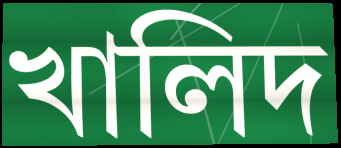
খালিদ